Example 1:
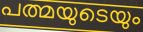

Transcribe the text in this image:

പത്മയുടെയും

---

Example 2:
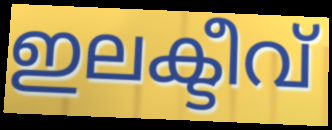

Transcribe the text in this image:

ഇലക്ടീവ്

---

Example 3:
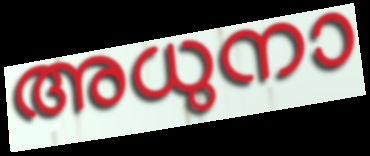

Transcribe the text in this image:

അധുനാ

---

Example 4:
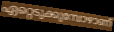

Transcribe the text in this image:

ഏറ്റെടുക്കുമ്പോഴാണ്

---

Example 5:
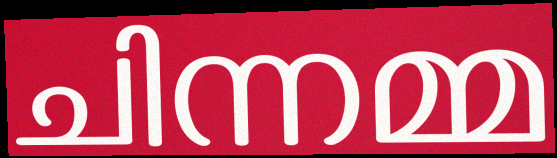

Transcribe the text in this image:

ചിന്നമ്മ